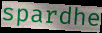
spardhe